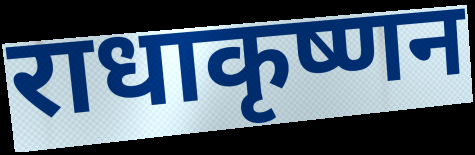
राधाकृष्णन